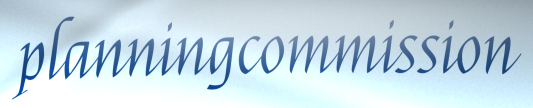
planningcommission